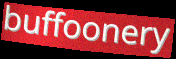
buffoonery